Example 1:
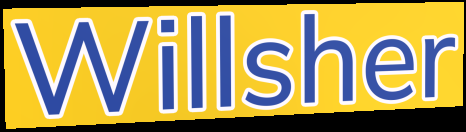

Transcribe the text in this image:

Willsher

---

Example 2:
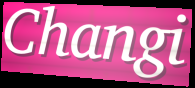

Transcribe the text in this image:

Changi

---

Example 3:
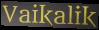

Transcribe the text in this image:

Vaikalik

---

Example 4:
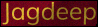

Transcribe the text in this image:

Jagdeep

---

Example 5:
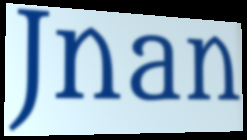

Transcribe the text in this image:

Jnan